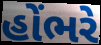
હોંભરે